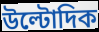
উল্টোদিক